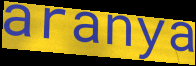
aranya